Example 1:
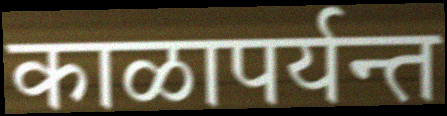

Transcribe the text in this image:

काळापर्यन्त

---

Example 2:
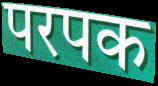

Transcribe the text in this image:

परपक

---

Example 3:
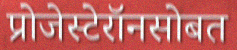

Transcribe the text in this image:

प्रोजेस्टेरॉनसोबत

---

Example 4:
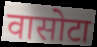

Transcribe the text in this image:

वासोटा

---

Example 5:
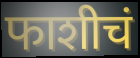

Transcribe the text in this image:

फाशीचं